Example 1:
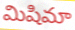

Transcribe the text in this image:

మిషిమా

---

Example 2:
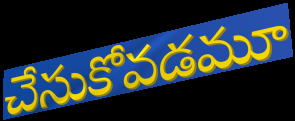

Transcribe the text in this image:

చేసుకోవడమూ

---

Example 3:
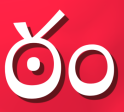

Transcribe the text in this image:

ఠం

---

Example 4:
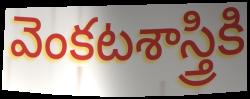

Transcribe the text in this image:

వెంకటశాస్త్రికి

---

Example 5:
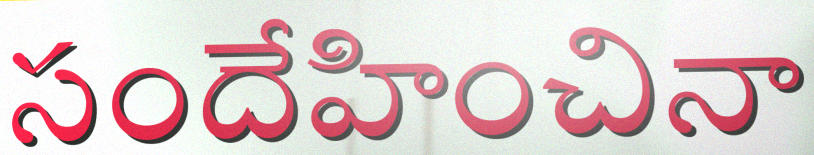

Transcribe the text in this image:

సందేహించినా